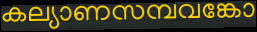
കല്യാണസമ്പവങ്കോ